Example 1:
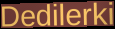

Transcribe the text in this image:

Dedilerki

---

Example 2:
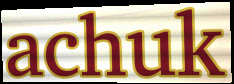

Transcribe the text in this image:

achuk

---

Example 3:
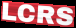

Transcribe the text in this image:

LCRS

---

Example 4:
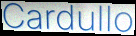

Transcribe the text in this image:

Cardullo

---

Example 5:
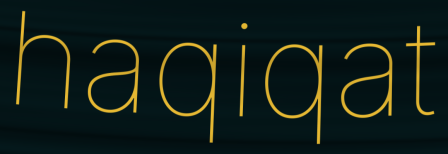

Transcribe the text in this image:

haqiqat